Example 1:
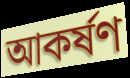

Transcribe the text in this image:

আকৰ্ষণ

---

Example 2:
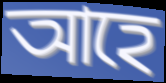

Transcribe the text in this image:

আহে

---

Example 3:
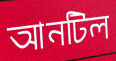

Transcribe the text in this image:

আনটিল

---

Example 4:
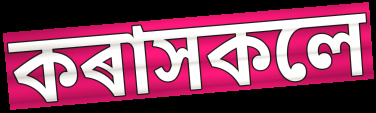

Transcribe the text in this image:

কৰাসকলে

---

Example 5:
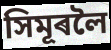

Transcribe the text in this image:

সিমূৰলৈ